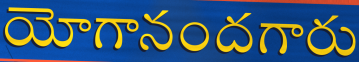
యోగానందగారు